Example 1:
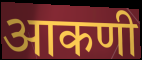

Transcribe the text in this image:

आकणी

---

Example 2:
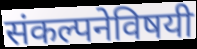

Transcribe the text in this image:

संकल्पनेविषयी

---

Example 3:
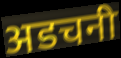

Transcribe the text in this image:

अडचनी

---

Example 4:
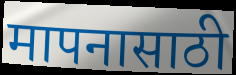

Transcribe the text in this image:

मापनासाठी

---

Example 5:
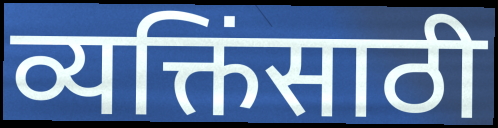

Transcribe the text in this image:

व्यक्तिंसाठी